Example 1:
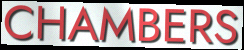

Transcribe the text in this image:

CHAMBERS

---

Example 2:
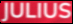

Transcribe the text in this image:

JULIUS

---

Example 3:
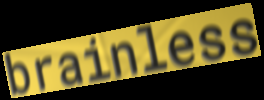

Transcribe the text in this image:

brainless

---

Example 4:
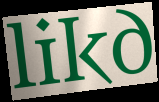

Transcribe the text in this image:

likd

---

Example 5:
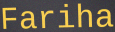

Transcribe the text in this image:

Fariha